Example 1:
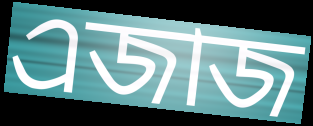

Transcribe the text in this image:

এজাজ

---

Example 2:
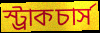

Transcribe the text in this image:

স্ট্রাকচার্স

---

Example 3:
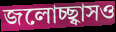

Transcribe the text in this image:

জলোচ্ছ্বাসও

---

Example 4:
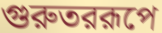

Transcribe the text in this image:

গুরুতররূপে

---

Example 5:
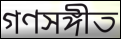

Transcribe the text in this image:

গণসঙ্গীত